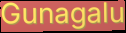
Gunagalu